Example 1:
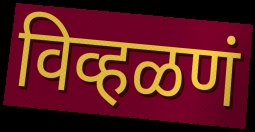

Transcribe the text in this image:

विव्हळणं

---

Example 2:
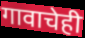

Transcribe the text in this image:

गावाचेही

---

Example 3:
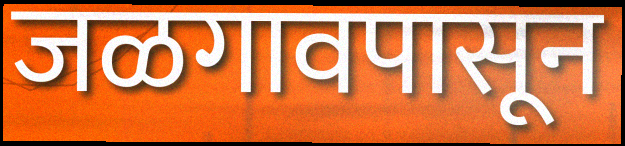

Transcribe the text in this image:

जळगावपासून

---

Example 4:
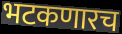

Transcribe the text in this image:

भटकणारच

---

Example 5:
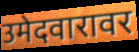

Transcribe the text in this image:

उमेदवारावर